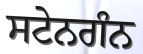
ਸਟੇਨਗੰਨ